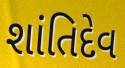
શાંતિદેવ